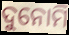
ଦୁନୋମି